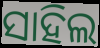
ସାହିଲ